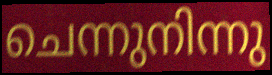
ചെന്നുനിന്നു